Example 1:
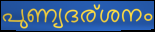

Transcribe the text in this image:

പുണ്യദര്ശനം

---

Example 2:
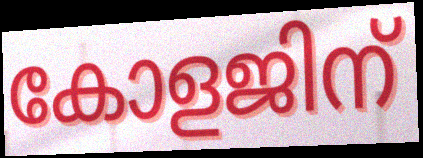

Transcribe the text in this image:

കോളജിന്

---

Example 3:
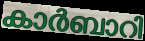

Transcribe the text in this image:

കാർബാറി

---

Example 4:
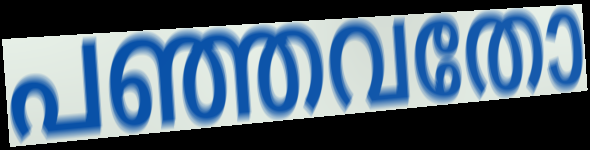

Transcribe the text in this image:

പഞ്ഞവതോ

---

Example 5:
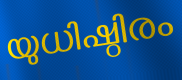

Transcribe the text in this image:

യുധിഷ്ഠിരം